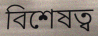
বিশেষত্ব